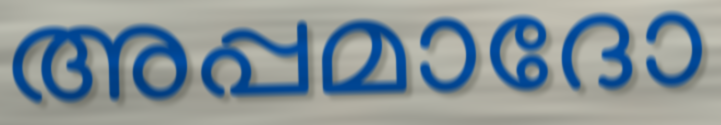
അപ്പമാദോ